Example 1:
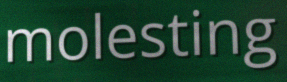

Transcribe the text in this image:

molesting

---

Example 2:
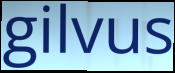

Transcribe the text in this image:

gilvus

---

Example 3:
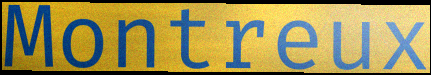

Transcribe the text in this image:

Montreux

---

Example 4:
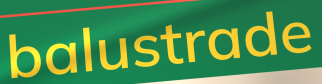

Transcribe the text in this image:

balustrade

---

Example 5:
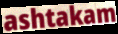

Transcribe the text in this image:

ashtakam